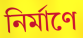
নিৰ্মাণে